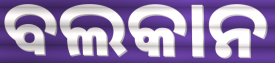
ବଲକାନ